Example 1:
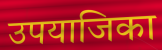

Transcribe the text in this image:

उपयाजिका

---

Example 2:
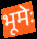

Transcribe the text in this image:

भूमेः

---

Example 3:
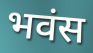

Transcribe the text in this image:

भवंस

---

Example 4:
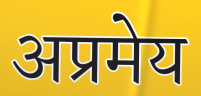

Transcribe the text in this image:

अप्रमेय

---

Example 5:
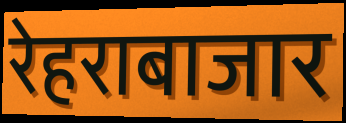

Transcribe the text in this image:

रेहराबाजार